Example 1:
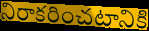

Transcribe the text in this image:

నిరాకరించటానికి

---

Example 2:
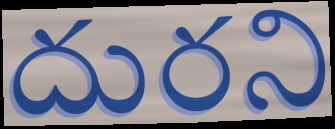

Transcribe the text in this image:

దురని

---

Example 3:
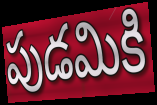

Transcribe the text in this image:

పుడమికి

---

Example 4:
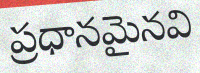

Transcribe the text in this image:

ప్రధానమైనవి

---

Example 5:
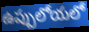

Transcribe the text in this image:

ఉప్పులోయలో